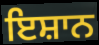
ਇਸ਼ਾਨ